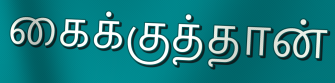
கைக்குத்தான்